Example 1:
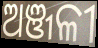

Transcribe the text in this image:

ଅଞ୍ଜଳୀ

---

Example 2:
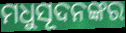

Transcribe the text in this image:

ମଧୁସୂଦନଙ୍କର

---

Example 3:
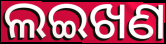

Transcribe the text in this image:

ଲଇଖଣ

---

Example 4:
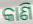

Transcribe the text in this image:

କାଣି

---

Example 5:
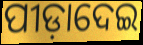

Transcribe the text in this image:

ପୀଡ଼ାଦେଇ